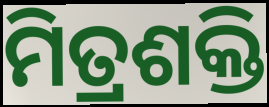
ମିତ୍ରଶକ୍ତି